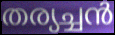
തര്യച്ചൻ